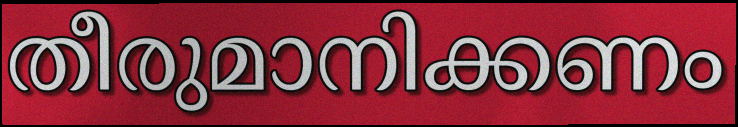
തീരുമാനിക്കണം